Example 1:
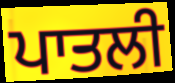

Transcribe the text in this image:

ਪਾਤਲੀ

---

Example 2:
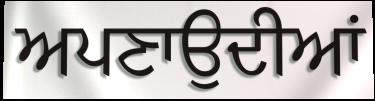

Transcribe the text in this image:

ਅਪਣਾਉਦੀਆਂ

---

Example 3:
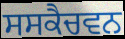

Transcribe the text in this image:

ਸਸਕੈਚਵਨ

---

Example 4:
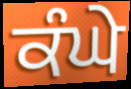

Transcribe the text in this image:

ਕੰਘੇ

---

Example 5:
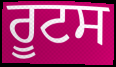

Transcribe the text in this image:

ਰੂਟਸ